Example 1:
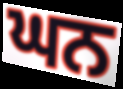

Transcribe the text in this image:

ਘਨ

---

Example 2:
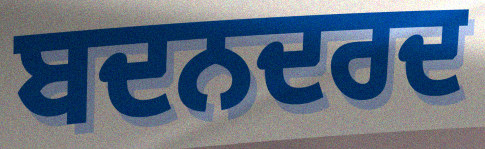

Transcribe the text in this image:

ਬਦਨਦਰਦ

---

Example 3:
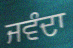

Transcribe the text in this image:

ਜਵੰਦਾ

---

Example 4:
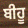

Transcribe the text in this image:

ਬੀਹੂ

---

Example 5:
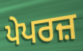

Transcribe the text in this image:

ਪੇਪਰਜ਼